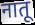
नातू